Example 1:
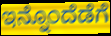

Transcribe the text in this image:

ಇನ್ನೊಂದೆಡೆಗೆ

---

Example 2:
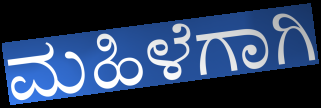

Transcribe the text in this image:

ಮಹಿಳೆಗಾಗಿ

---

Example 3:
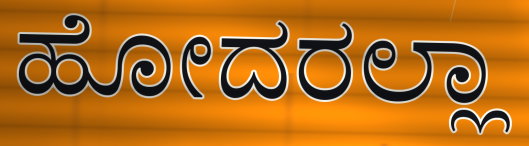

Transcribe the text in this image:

ಹೋದರಲ್ಲಾ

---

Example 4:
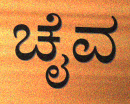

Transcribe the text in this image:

ಚೈವ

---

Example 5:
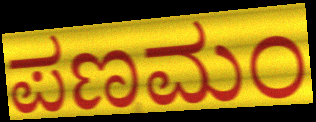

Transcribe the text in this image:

ಪಣಮಂ